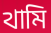
থামি